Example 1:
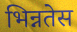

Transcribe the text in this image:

भिन्नतेस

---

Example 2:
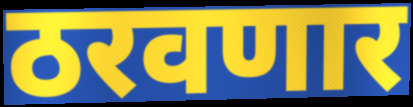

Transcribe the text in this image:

ठरवणार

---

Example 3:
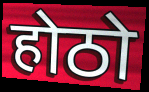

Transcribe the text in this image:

होठो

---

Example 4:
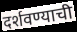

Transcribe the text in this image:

दर्शवण्याची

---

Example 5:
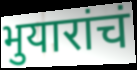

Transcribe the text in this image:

भुयारांचं